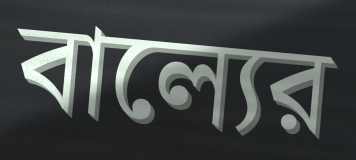
বাল্যের